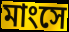
মাংসে